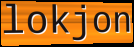
lokjon